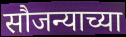
सौजन्याच्या